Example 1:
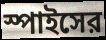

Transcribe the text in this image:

স্পাইসের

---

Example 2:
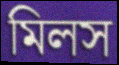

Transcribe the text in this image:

মিলস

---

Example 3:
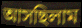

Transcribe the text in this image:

আসছিলাম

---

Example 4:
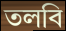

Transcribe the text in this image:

তলবি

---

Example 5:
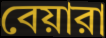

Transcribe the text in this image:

বেয়ারা